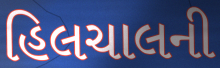
હિલચાલની